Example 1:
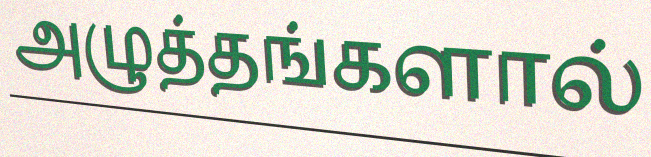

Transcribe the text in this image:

அழுத்தங்களால்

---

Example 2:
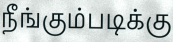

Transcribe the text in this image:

நீங்கும்படிக்கு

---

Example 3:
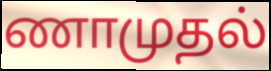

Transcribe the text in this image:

ணாமுதல்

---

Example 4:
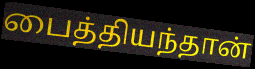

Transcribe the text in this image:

பைத்தியந்தான்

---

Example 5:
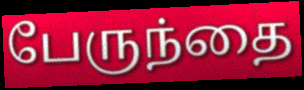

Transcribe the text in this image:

பேருந்தை